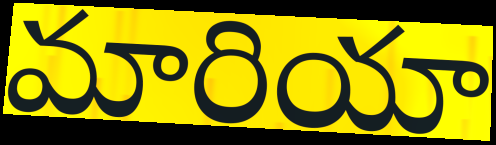
మారియా